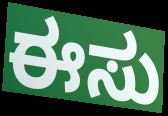
ಈಸು